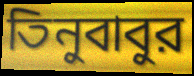
তিনুবাবুর